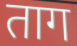
ताग